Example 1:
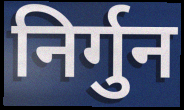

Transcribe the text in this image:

निर्गुन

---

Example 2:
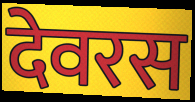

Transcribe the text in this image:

देवरस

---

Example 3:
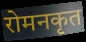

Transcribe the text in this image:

रोमनकृत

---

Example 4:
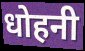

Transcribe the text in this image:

धोहनी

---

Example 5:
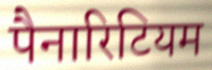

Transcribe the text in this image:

पैनारिटियम